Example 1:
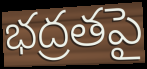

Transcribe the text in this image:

భద్రతపై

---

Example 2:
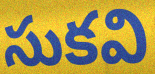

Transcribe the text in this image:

సుకవి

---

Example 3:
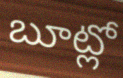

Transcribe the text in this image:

బూట్లో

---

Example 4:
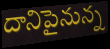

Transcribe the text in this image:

దానిపైనున్న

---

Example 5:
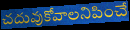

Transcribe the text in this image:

చదువుకోవాలనిపించే